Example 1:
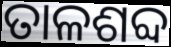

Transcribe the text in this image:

ତାଳଶବ୍ଦ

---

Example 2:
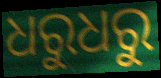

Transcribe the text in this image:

ଧରୁଧରୁ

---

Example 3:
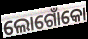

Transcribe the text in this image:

ଲୋଗୋଁକୋ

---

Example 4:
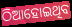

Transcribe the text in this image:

ଠିଆହୋଇଥିବ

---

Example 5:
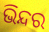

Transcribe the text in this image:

ଭିନ୍ଦର